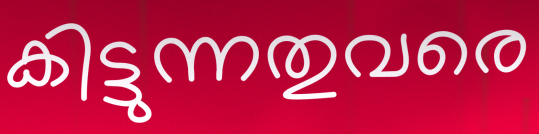
കിട്ടുന്നതുവരെ